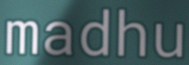
madhu